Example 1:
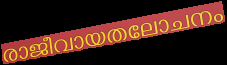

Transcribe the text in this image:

രാജീവായതലോചനം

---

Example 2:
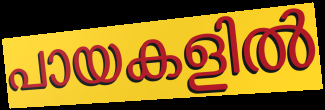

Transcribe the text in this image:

പായകളിൽ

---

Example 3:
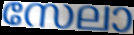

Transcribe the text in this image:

സേലാ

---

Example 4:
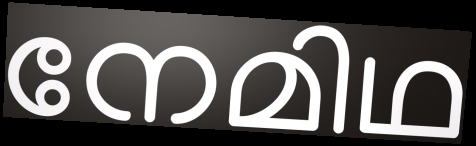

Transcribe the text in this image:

നേമിഥ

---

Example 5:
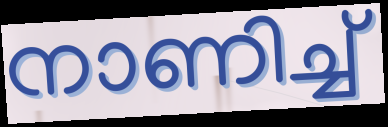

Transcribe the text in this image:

നാണിച്ച്